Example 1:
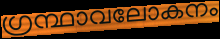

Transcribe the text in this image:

ഗ്രന്ഥാവലോകനം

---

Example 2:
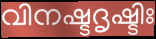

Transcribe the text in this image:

വിനഷ്ടദൃഷ്ടിഃ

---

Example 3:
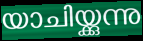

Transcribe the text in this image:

യാചിയ്ക്കുന്നു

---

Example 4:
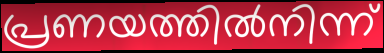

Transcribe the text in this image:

പ്രണയത്തിൽനിന്ന്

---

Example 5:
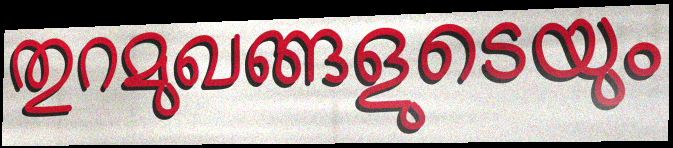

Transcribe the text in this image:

തുറമുഖങ്ങളുടെയും